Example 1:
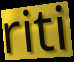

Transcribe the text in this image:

riti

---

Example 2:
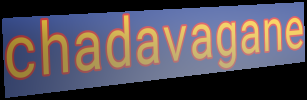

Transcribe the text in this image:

chadavagane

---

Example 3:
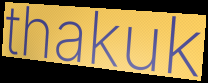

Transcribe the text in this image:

thakuk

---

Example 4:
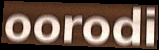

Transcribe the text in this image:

oorodi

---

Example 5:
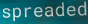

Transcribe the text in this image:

spreaded